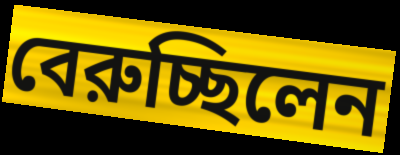
বেরুচ্ছিলেন